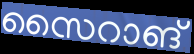
സൈറാങ്